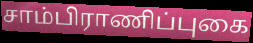
சாம்பிராணிப்புகை